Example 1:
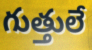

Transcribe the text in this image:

గుత్తులే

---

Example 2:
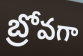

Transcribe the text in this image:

బ్రోవగా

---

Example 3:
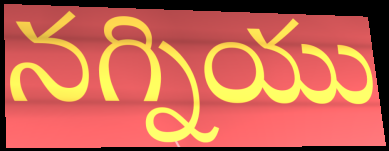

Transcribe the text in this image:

నగ్నియు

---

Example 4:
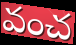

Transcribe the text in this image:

వంచ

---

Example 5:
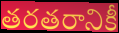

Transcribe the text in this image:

తరతరానికీ